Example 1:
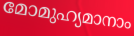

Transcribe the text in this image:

മോമുഹ്യമാനാം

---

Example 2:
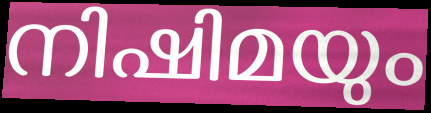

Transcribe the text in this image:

നിഷിമയും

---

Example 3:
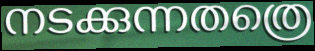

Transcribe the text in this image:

നടക്കുന്നതത്രെ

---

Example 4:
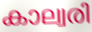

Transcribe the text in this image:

കാല്വരി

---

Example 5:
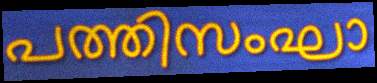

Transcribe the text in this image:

പത്തിസംഘാ